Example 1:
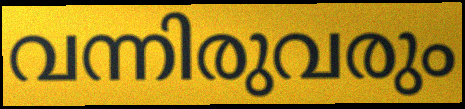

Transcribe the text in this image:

വന്നിരുവരും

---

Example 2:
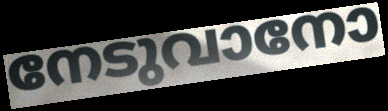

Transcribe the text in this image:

നേടുവാനോ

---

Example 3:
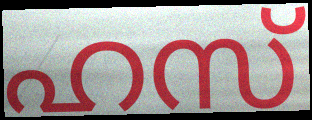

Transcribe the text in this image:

ഹസ്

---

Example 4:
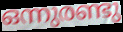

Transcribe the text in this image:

ഒന്നുരണ്ടു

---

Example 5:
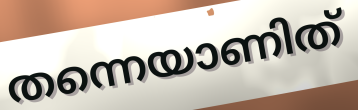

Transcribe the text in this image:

തന്നെയാണിത്